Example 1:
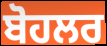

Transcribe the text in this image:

ਬੋਹਲਰ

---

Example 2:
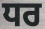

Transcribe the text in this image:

ਧਰ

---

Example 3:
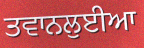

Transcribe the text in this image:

ਤਵਾਨਲੁਈਆ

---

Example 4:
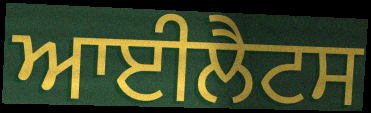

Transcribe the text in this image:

ਆਈਲੈਟਸ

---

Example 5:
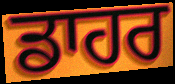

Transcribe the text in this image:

ਡਾਹਰ